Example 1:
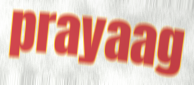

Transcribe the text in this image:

prayaag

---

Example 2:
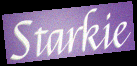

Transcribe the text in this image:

Starkie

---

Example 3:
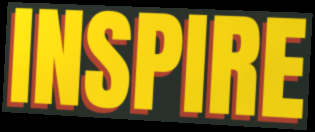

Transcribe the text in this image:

INSPIRE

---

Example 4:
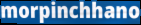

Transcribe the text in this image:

morpinchhano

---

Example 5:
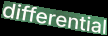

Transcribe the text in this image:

differential